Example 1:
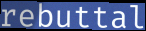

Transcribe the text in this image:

rebuttal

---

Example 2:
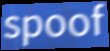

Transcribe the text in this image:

spoof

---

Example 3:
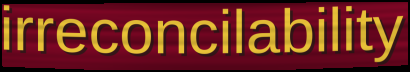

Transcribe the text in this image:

irreconcilability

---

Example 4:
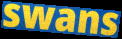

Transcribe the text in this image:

swans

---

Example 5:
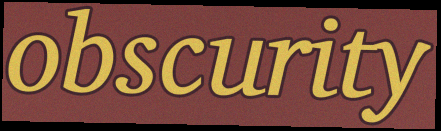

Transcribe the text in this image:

obscurity